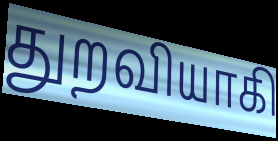
துறவியாகி